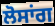
ਲੋਸਾਂਗ